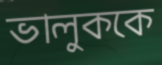
ভালুককে